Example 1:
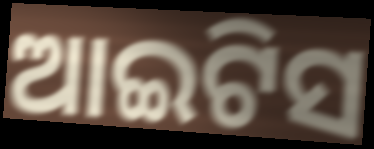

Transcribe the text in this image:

ଆଇଟିସ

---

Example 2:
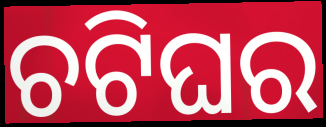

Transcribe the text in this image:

ଚଟିଘର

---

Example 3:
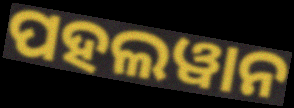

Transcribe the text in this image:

ପହଲୱାନ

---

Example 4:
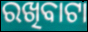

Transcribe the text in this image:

ରଖିବାଟା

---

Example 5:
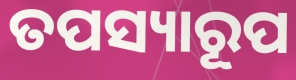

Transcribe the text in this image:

ତପସ୍ୟାରୂପ